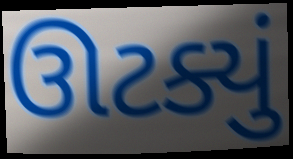
ઊટક્યું